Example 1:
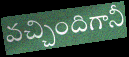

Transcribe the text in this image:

వచ్చిందిగానీ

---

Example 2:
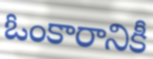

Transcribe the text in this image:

ఓంకారానికీ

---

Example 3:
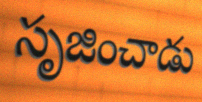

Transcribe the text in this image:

సృజించాడు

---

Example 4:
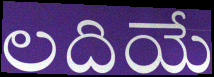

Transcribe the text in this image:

లదియే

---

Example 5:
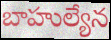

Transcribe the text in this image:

బాహుల్యేన